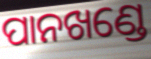
ପାନଖଣ୍ଡେ